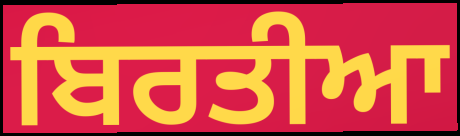
ਬਿਰਤੀਆ